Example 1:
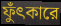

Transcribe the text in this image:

ফুঁৎকারে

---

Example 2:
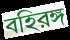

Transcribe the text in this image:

বহিরঙ্গ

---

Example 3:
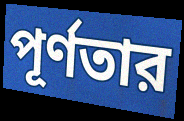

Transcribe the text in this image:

পূর্ণতার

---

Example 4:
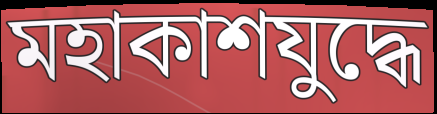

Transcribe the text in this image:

মহাকাশযুদ্ধে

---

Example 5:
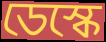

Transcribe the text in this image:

ডেস্কে